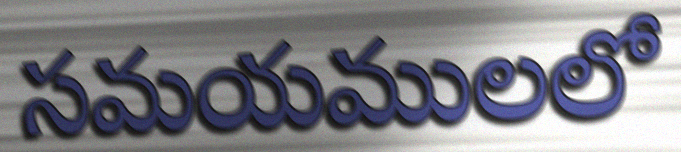
సమయములలో